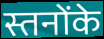
स्तनोंके